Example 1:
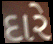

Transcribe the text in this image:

દારે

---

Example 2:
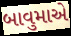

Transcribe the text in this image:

બાવુમાએ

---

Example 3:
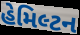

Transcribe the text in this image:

હેમિલ્ટન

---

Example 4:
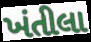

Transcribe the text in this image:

ખંતીલા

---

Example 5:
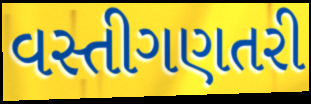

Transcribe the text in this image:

વસ્તીગણતરી